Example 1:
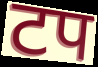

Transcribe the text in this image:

टप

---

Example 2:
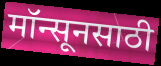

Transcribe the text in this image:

मॉन्सूनसाठी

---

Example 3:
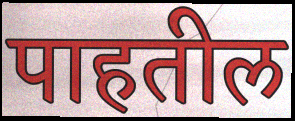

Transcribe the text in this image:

पाहतील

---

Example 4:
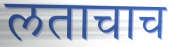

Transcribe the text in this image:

लताचाच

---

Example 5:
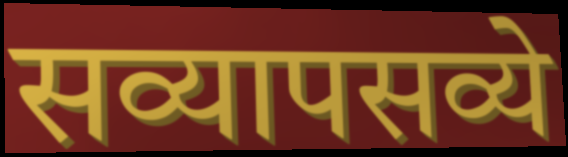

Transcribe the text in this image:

सव्यापसव्ये